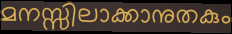
മനസ്സിലാക്കാനുതകും